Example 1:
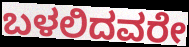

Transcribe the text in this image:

ಬಳಲಿದವರೇ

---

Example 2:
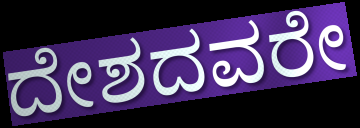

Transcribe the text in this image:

ದೇಶದವರೇ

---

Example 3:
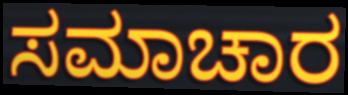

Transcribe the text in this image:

ಸಮಾಚಾರ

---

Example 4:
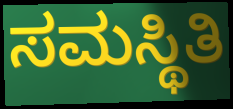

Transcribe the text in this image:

ಸಮಸ್ಥಿತಿ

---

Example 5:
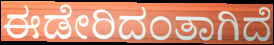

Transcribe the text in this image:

ಈಡೇರಿದಂತಾಗಿದೆ